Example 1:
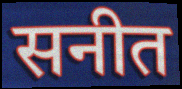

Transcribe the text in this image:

सनीत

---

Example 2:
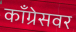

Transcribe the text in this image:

काँग्रेसवर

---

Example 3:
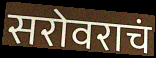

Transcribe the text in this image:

सरोवराचं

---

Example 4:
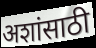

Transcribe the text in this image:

अशांसाठी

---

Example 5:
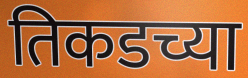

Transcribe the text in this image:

तिकडच्या